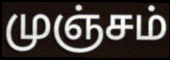
முஞ்சம்